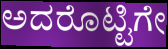
ಅದರೊಟ್ಟಿಗೇ